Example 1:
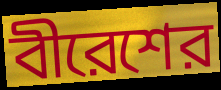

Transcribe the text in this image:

বীরেশের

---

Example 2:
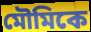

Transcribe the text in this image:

মৌমিকে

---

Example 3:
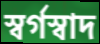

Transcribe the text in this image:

স্বর্গস্বাদ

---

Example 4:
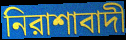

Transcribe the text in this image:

নিরাশাবাদী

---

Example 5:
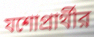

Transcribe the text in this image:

যশোপ্রার্থীর